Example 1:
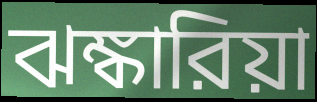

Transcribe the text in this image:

ঝঙ্কারিয়া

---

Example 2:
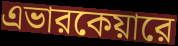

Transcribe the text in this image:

এভারকেয়ারে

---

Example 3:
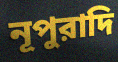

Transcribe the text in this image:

নূপুরাদি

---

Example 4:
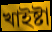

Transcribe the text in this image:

খাইষ্টা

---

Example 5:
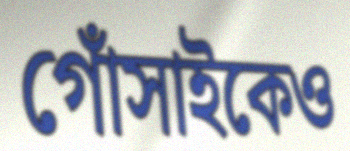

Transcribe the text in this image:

গোঁসাইকেও